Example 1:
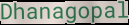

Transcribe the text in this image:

Dhanagopal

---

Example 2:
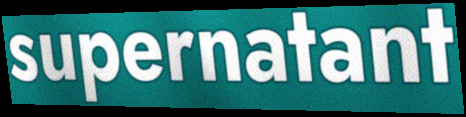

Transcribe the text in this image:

supernatant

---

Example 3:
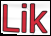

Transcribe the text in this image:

Lik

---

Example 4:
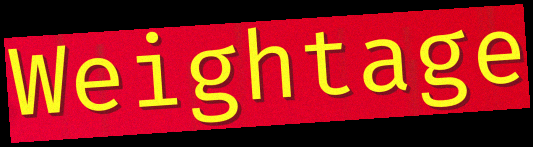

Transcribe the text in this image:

Weightage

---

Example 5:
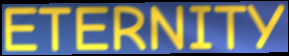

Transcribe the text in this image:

ETERNITY